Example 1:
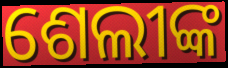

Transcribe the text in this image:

ଶେଲୀଙ୍କ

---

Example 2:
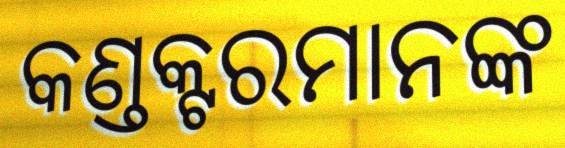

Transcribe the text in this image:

କଣ୍ଡକ୍ଟରମାନଙ୍କ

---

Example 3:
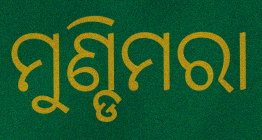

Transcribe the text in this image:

ମୁଣ୍ଡିମରା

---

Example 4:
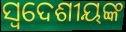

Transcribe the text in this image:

ସ୍ଵଦେଶୀୟଙ୍କ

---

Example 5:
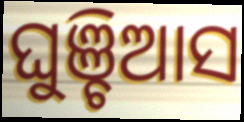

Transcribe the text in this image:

ଘୁଞ୍ଚିଆସ